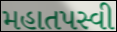
મહાતપસ્વી